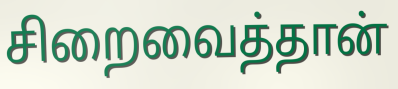
சிறைவைத்தான்